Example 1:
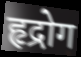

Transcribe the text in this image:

हृद्रोग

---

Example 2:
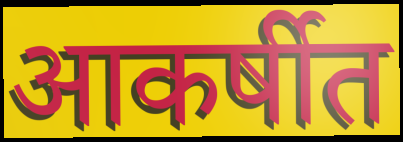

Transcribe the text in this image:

आकर्षीत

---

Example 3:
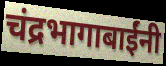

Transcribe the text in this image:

चंद्रभागाबाईंनी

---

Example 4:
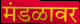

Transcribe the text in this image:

मंडळावर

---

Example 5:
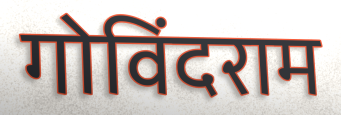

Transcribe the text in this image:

गोविंदराम